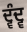
ਦ੍ਵੰਦ੍ਵ